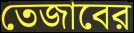
তেজাবের